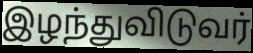
இழந்துவிடுவர்